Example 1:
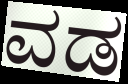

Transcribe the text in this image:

ವಡ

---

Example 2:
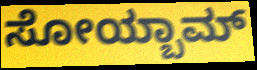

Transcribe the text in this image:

ಸೋಯ್ಬಾಮ್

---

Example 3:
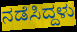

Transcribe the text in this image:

ನಡೆಸಿದ್ದಳು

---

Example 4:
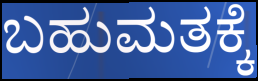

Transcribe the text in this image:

ಬಹುಮತಕ್ಕೆ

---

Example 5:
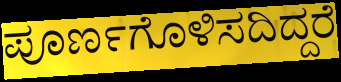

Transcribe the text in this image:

ಪೂರ್ಣಗೊಳಿಸದಿದ್ದರೆ